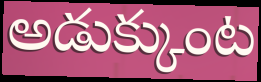
అడుక్కుంట